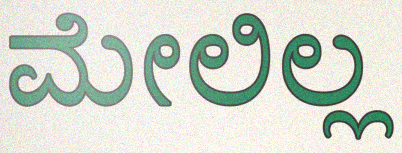
ಮೇಲಿಲ್ಲ